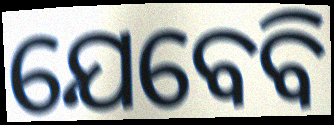
ଯେବେବି